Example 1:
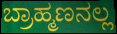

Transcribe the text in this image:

ಬ್ರಾಹ್ಮಣನಲ್ಲ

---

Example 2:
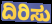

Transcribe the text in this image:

ದಿರಿಸು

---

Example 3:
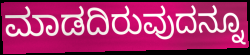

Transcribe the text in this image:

ಮಾಡದಿರುವುದನ್ನೂ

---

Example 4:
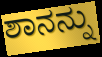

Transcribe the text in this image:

ಶಾನನ್ನು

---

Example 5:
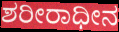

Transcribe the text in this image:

ಶರೀರಾಧೀನ